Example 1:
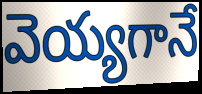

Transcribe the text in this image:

వెయ్యగానే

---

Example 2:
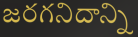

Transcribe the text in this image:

జరగనిదాన్ని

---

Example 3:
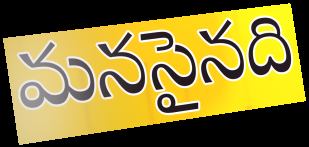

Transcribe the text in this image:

మనసైనది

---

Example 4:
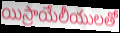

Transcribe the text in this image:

యిస్రాయేలీయులతో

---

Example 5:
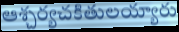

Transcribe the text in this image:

ఆశ్చర్యచకితులయ్యారు